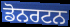
ਡੋਨਰਟਨ